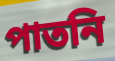
পাতনি